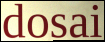
dosai